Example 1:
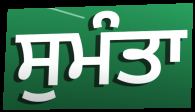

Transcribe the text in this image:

ਸੁਮੰਤਾ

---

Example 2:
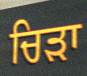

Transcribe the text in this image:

ਚਿੜਾ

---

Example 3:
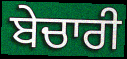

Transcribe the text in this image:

ਬੇਚਾਰੀ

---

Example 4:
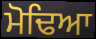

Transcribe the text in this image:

ਮੋਢਿਆ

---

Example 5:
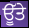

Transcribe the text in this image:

ਊੱਤੇ